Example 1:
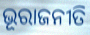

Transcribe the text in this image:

ଭୂରାଜନୀତି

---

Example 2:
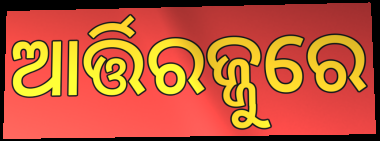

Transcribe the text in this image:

ଆର୍ତ୍ତିରଜ୍ଜୁରେ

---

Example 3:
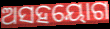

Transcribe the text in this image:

ଅସହୟୋଗ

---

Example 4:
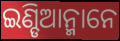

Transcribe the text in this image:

ଇଣ୍ଡିଆନ୍ମାନେ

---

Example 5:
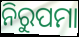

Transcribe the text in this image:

ନିରୁପମା